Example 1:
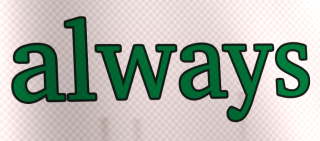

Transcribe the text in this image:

always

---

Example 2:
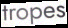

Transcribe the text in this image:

tropes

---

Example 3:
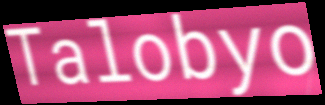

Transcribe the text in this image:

Talobyo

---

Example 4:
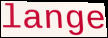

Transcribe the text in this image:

lange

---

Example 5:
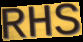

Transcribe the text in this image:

RHS